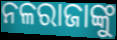
ନଳରାଜାଙ୍କୁ